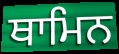
ਥਾਮਿਨ